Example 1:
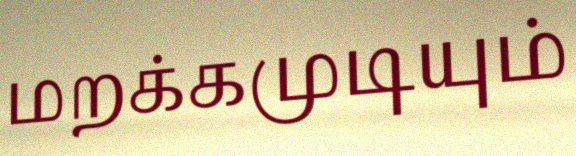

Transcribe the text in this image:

மறக்கமுடியும்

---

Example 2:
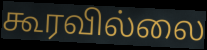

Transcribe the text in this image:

கூரவில்லை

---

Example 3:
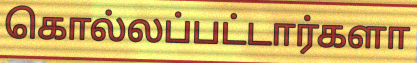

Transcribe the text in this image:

கொல்லப்பட்டார்களா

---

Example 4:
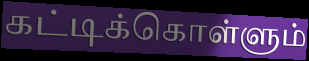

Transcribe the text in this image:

கட்டிக்கொள்ளும்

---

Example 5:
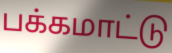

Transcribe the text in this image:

பக்கமாட்டு